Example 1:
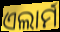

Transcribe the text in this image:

ଏଲାର୍ମ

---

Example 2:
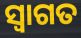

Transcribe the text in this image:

ସ୍ୱାଗତ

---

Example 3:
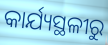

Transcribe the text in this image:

କାର୍ଯ୍ୟସ୍ଥଳୀରୁ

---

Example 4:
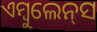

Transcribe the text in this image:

ଏମ୍ବୁଲେନ୍‌ସ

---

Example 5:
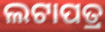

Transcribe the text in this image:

ଲଟାପତ୍ର